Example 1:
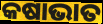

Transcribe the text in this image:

କଷାଭାତ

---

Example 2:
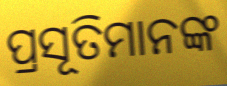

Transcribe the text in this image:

ପ୍ରସୂତିମାନଙ୍କ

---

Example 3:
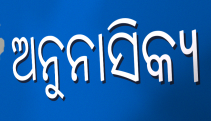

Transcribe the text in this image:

ଅନୁନାସିକ୍ୟ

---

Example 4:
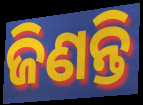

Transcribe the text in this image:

ଜିଣନ୍ତି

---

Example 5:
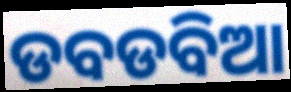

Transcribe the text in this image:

ଡବଡବିଆ